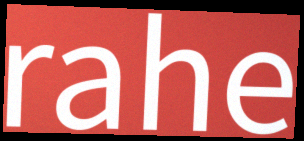
rahe